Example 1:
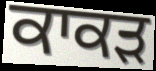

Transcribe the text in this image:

ਕਾਕੜ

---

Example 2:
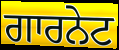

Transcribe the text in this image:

ਗਾਰਨੇਟ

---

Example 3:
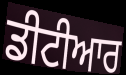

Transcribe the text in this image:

ਡੀਟੀਆਰ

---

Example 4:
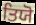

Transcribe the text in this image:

ਤਿਯੋ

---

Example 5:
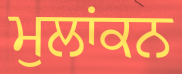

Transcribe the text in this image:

ਮੁਲਾਂਕਨ